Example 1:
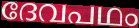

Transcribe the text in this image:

ദേവപഥം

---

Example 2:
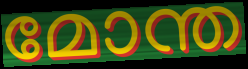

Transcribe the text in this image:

മോന്ത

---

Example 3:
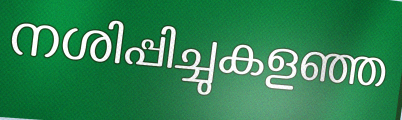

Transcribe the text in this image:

നശിപ്പിച്ചുകളഞ്ഞ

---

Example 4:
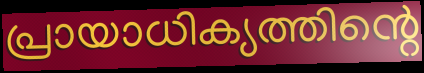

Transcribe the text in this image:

പ്രായാധിക്യത്തിന്റെ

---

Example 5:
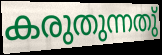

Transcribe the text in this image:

കരുതുന്നതു്